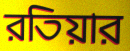
রতিয়ার